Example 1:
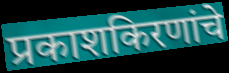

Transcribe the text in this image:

प्रकाशकिरणांचे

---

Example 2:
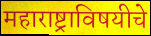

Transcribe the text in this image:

महाराष्ट्राविषयीचे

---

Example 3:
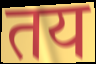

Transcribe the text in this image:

तय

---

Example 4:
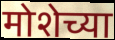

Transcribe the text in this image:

मोशेच्या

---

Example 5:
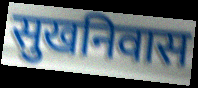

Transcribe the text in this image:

सुखनिवास